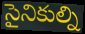
సైనికుల్ని